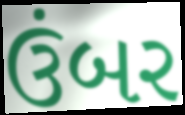
ઉંબર